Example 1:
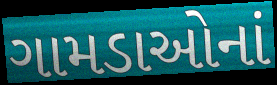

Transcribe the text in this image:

ગામડાઓનાં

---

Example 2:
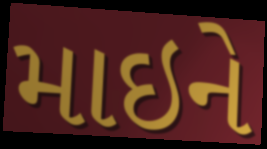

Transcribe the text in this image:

માઇને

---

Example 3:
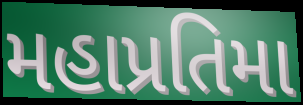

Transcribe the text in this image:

મહાપ્રતિમા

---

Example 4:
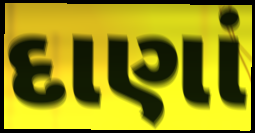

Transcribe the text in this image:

દાણાં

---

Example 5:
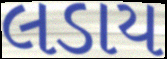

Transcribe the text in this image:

લડાય